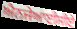
ਐਨਜੇਆਈਸੀਏ